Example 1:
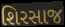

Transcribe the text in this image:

શિરસાજ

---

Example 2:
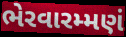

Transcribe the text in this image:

ભેરવારમ્મણં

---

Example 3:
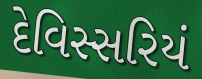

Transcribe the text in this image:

દેવિસ્સરિયં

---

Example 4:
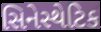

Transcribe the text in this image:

સિનેસ્થેટિક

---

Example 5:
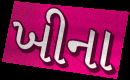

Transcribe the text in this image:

ખીના